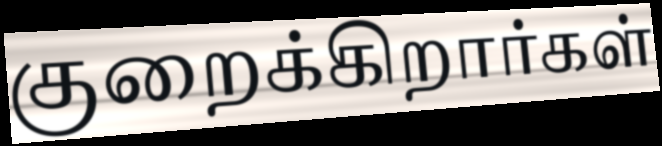
குறைக்கிறார்கள்